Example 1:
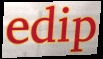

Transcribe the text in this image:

edip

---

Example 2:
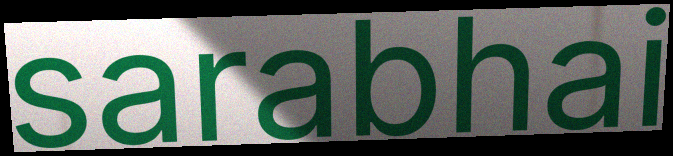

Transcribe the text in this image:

sarabhai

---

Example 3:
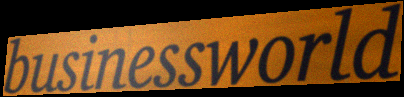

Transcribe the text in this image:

businessworld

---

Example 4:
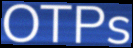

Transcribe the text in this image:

OTPs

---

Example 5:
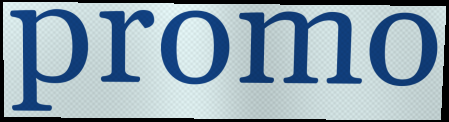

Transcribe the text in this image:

promo